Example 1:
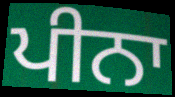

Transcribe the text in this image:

ਪੀਨਾ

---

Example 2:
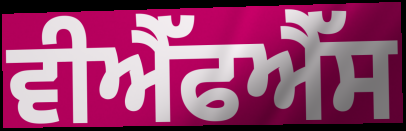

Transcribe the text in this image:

ਵੀਐੱਫਐੱਸ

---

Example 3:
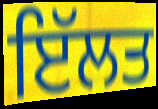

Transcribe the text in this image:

ਇੱਲਤ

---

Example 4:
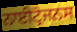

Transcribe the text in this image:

ਨਾਈਟ੍ਰੋਜਨਸ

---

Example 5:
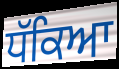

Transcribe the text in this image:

ਧੱਕਿਆ